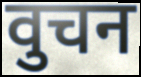
वुचन